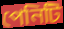
পেনিটি